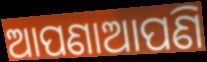
ଆପଣାଆପଣି